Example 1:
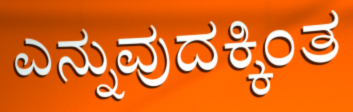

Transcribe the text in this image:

ಎನ್ನುವುದಕ್ಕಿಂತ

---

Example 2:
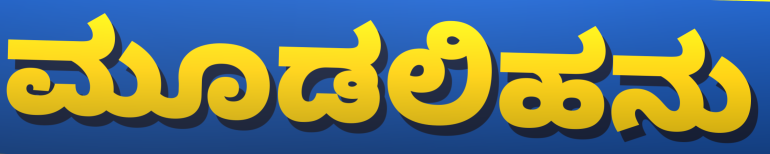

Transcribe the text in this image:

ಮೂಡಲಿಹನು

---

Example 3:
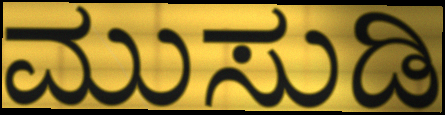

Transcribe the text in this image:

ಮುಸುಡಿ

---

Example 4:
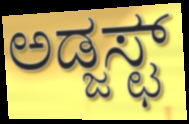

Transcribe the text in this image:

ಅಡ್ಜಸ್ಟ್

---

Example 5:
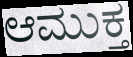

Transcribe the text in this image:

ಆಮುಕ್ತ